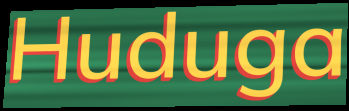
Huduga